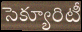
సెక్యూరిటీ